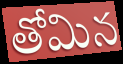
తోమిన